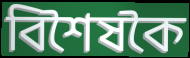
বিশৈষকৈ